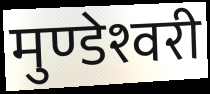
मुण्डेश्वरी